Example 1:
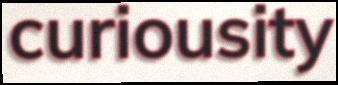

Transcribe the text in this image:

curiousity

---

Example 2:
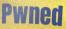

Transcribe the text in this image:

Pwned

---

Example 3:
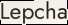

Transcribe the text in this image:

Lepcha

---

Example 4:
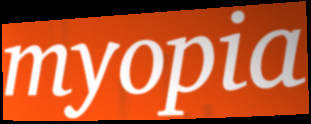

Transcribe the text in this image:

myopia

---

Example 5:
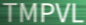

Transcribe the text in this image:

TMPVL